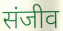
संजीव